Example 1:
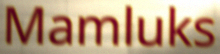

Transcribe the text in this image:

Mamluks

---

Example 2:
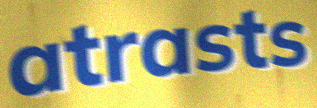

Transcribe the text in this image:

atrasts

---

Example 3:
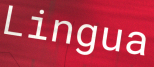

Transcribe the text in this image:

Lingua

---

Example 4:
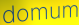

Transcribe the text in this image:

domum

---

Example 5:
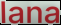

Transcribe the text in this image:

lana